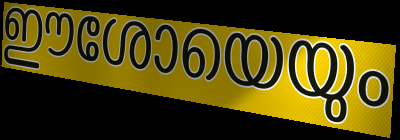
ഈശോയെയും